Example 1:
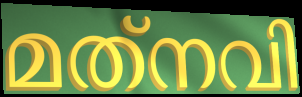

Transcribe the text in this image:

മത്‌നവി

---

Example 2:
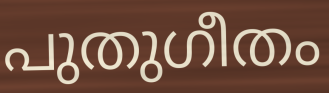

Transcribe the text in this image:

പുതുഗീതം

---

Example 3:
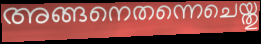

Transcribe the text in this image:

അങ്ങനെതന്നെചെയ്തു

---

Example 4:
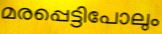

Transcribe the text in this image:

മരപ്പെട്ടിപോലും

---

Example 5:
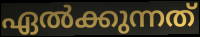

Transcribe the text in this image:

ഏൽക്കുന്നത്